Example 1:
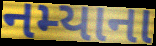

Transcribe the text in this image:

નમ્યાના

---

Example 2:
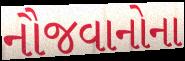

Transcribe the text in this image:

નૌજવાનોના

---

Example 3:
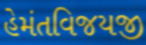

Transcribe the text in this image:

હેમંતવિજયજી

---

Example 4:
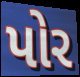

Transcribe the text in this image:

પોર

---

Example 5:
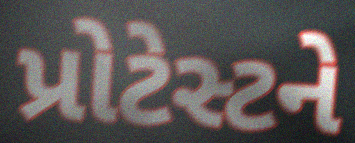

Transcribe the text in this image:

પ્રોટેસ્ટને